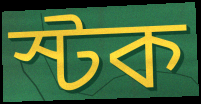
স্টক